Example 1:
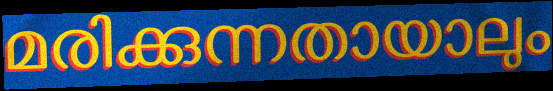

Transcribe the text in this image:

മരിക്കുന്നതായാലും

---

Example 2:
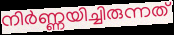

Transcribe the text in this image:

നിർണ്ണയിച്ചിരുന്നത്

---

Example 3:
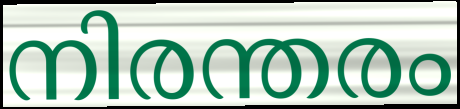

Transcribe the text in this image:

നിരന്തരം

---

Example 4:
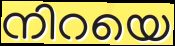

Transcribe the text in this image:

നിറയെ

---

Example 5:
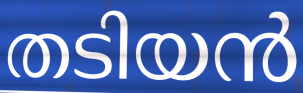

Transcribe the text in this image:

തടിയൻ